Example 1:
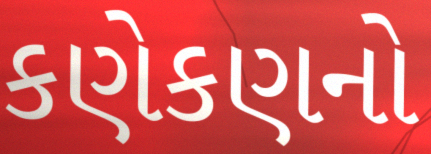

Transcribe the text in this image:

કણેકણનો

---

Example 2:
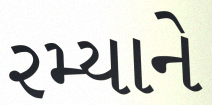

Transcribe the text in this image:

રમ્યાને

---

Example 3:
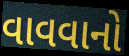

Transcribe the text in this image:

વાવવાનો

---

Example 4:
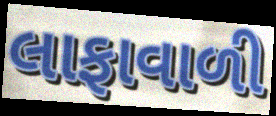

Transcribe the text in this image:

લાફાવાળી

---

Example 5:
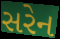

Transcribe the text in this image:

સરેન